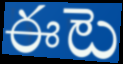
ఈటె